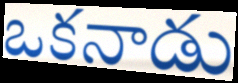
ఒకనాడు